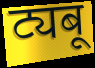
ट्यबू